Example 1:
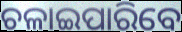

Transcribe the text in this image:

ଚଳାଇପାରିବେ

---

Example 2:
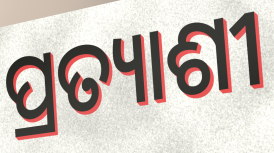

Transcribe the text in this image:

ପ୍ରତ୍ୟାଶୀ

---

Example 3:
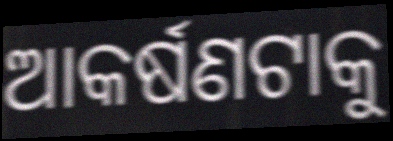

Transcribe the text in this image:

ଆକର୍ଷଣଟାକୁ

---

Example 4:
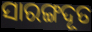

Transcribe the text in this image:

ସାରଙ୍ଗଦୂତ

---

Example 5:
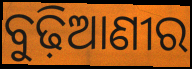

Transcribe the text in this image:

ବୁଢ଼ିଆଣୀର